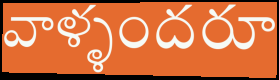
వాళ్ళందరూ